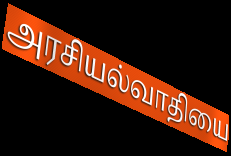
அரசியல்வாதியை